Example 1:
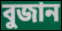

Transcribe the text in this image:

বুজান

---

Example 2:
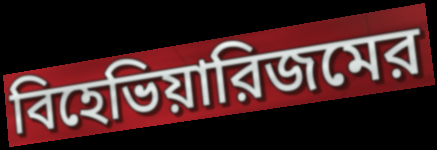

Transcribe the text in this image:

বিহেভিয়ারিজমের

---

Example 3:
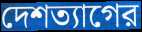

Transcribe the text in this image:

দেশত্যাগের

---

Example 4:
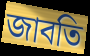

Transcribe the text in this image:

জাবতি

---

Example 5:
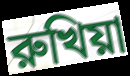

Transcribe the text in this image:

রুখিয়া